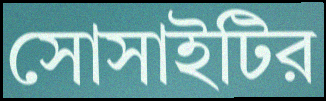
সোসাইটির